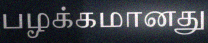
பழக்கமானது